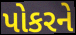
પોકરને